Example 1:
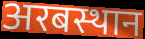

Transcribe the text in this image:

अरबस्थान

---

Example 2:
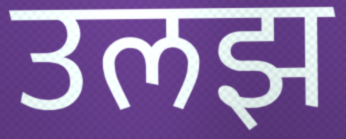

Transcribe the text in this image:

उलझ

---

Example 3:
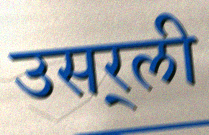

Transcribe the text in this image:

उसर्ली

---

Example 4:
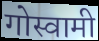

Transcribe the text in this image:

गोस्वामी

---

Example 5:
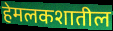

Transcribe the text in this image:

हेमलकशातील